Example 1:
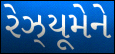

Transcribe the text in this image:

રેઝ્યૂમેને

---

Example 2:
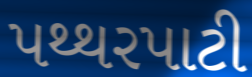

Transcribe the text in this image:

પથ્થરપાટી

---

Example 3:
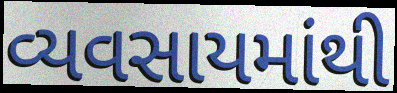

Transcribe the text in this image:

વ્યવસાયમાંથી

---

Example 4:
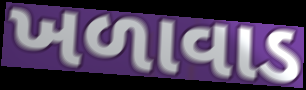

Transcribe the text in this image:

ખળાવાડ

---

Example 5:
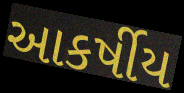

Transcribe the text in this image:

આકર્ષીય